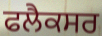
ਫਲੈਕਸਰ